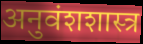
अनुवंशशास्त्र